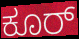
ಕೂರ್